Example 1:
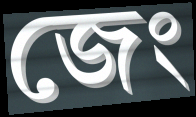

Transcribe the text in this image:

জেং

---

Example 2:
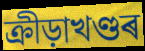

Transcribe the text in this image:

ক্ৰীড়াখণ্ডৰ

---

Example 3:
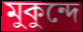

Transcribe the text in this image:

মুকুন্দে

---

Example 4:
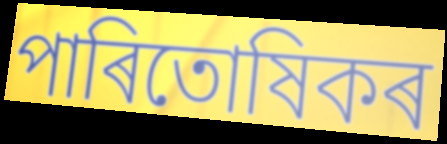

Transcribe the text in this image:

পাৰিতোষিকৰ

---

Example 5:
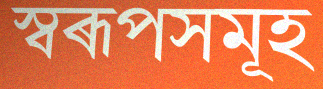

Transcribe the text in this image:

স্বৰূপসমূহ